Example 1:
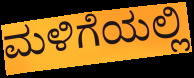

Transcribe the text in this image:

ಮಳಿಗೆಯಲ್ಲಿ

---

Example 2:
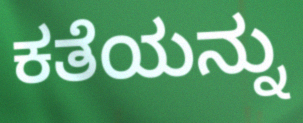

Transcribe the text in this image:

ಕತೆಯನ್ನು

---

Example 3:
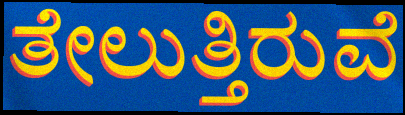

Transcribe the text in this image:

ತೇಲುತ್ತಿರುವೆ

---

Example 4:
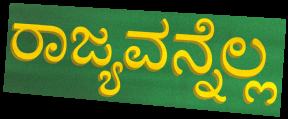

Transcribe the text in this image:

ರಾಜ್ಯವನ್ನೆಲ್ಲ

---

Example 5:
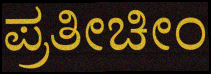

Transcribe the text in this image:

ಪ್ರತೀಚೀಂ